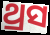
ଥ୍ରସ